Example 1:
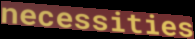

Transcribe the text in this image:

necessities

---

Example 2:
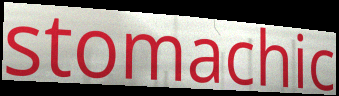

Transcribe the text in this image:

stomachic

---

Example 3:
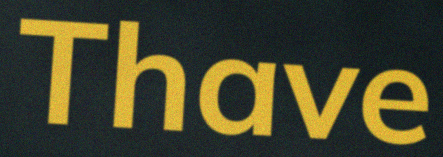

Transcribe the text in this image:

Thave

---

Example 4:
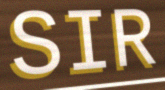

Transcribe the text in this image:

SIR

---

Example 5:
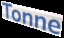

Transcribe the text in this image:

Tonne